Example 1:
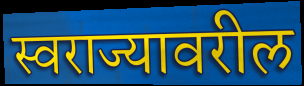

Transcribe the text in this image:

स्वराज्यावरील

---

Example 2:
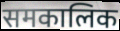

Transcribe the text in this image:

समकालिक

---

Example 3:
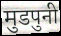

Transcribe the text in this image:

मुडपुनी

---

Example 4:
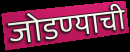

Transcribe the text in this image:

जोडण्याची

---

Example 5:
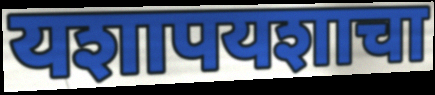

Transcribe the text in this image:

यशापयशाचा